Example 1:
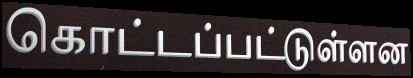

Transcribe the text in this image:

கொட்டப்பட்டுள்ளன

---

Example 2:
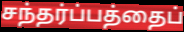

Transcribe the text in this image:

சந்தர்ப்பத்தைப்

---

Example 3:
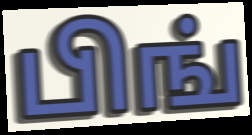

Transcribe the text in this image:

பிங்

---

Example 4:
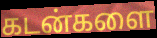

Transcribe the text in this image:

கடன்களை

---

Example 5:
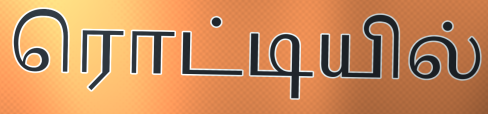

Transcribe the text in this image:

ரொட்டியில்